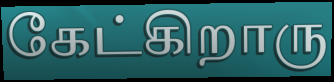
கேட்கிறாரு